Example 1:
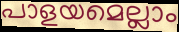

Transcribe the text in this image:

പാളയമെല്ലാം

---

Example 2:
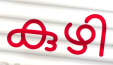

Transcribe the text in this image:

കുഴി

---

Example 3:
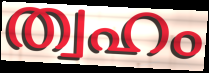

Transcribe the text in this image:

ത്വഹം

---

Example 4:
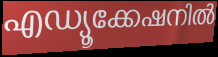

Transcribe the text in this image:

എഡ്യൂക്കേഷനിൽ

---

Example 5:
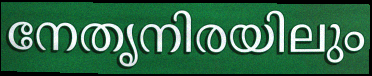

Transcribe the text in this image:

നേതൃനിരയിലും